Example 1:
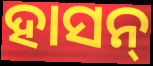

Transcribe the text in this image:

ହାସନ୍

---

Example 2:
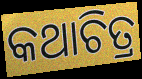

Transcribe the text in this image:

କଥାଚିତ୍ର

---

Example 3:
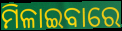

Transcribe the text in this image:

ମିଳାଇବାରେ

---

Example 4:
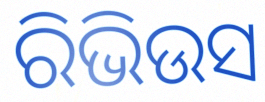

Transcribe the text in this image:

ରିଭିଉସ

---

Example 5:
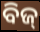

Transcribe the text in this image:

ବିଜ୍